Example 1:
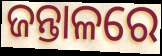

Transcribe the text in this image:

ଜନ୍ତାଳରେ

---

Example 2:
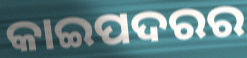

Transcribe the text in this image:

କାଇପଦରର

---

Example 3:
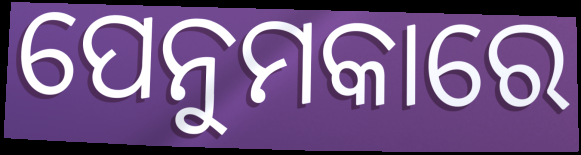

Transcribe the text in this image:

ପେନୁମକାରେ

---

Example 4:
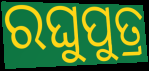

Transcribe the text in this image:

ରଘୁପୁତ୍ର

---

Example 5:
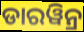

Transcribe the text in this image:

ଡାରୱିନ୍ର